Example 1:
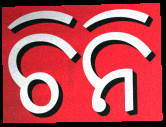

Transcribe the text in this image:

ଚିନି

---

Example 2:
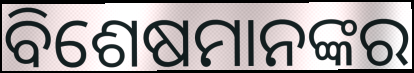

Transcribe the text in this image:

ବିଶେଷମାନଙ୍କର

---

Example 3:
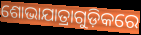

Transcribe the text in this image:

ଶୋଭାଯାତ୍ରାଗୁଡ଼ିକରେ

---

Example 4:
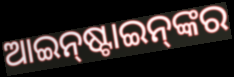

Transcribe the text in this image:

ଆଇନ୍‌ଷ୍ଟାଇନ୍‌ଙ୍କର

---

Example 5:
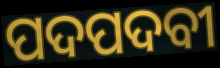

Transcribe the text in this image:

ପଦପଦବୀ